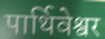
पार्थिवेश्वर